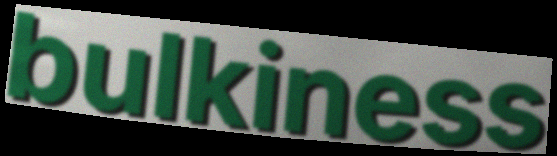
bulkiness